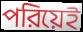
পরিয়েই